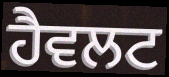
ਹੈਵਲਟ